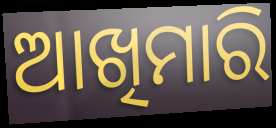
ଆଖିମାରି